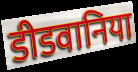
डीडवानिया